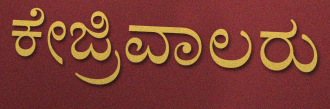
ಕೇಜ್ರಿವಾಲರು